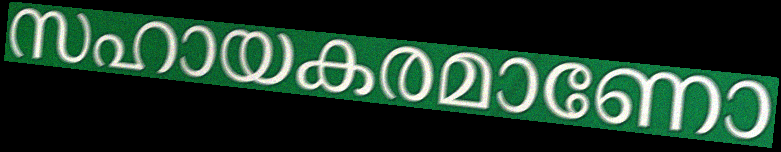
സഹായകരമാണോ